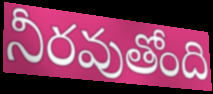
నీరవుతోంది